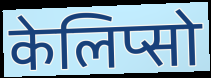
केलिप्सो